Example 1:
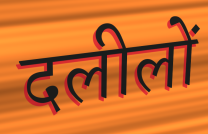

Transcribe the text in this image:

दलीलों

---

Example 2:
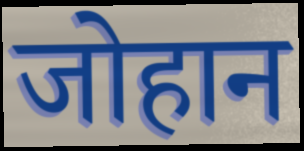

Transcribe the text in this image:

जोहान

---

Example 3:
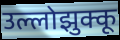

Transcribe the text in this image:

उल्लोझुक्कू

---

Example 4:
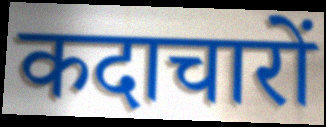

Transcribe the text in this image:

कदाचारों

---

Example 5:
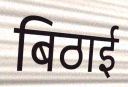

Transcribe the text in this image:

बिठाई